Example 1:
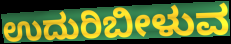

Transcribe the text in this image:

ಉದುರಿಬೀಳುವ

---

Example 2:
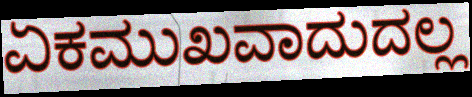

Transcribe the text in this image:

ಏಕಮುಖವಾದುದಲ್ಲ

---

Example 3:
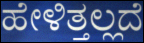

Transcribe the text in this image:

ಹೇಳಿತ್ತಲ್ಲದೆ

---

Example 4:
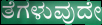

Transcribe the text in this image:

ತೆಗಳುವುದೇ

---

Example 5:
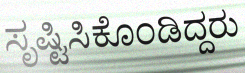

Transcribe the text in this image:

ಸೃಷ್ಟಿಸಿಕೊಂಡಿದ್ದರು